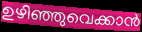
ഉഴിഞ്ഞുവെക്കാൻ